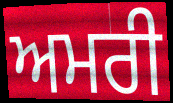
ਅਮਰੀ